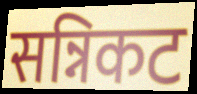
सन्निकट